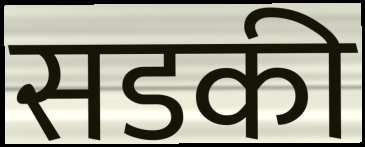
सडकी